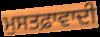
ਮੁਸਤਫ਼ਾਵਾਦੀ